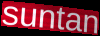
suntan